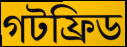
গটফ্রিড